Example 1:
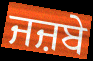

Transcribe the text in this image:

ਜਜ਼ਬੇ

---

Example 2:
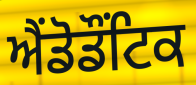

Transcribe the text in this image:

ਐਂਡੋਡੌਂਟਿਕ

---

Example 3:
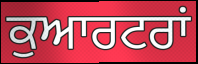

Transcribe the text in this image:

ਕੁਆਰਟਰਾਂ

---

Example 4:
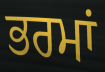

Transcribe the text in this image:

ਭਰਮਾਂ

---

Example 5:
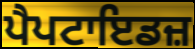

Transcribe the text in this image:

ਪੈਪਟਾਇਡਜ਼